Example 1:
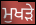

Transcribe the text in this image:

ਮੁਖੜੇ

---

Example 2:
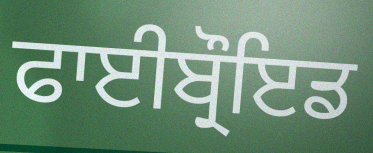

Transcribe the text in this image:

ਫਾਈਬ੍ਰੌਇਡ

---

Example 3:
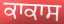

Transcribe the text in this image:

ਕਾਕਾਸ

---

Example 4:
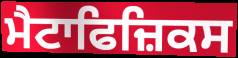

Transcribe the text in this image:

ਮੈਟਾਫਿਜ਼ਿਕਸ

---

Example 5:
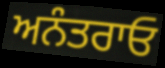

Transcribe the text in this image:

ਅਨੰਤਰਾਓ